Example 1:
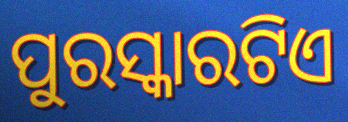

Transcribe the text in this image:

ପୁରସ୍କାରଟିଏ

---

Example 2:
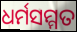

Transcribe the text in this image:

ଧର୍ମସମ୍ମତ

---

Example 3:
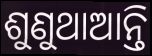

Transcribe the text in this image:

ଶୁଣୁଥାଆନ୍ତି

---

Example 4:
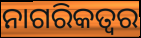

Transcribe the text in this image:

ନାଗରିକତ୍ୱର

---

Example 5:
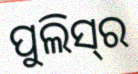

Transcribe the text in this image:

ପୁଲିସ୍‌ର